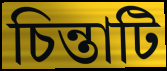
চিন্তাটি